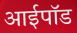
आईपॉड